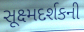
સૂક્ષ્મદર્શકની